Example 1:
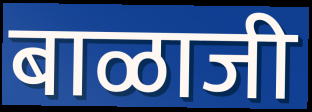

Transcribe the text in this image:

बाळाजी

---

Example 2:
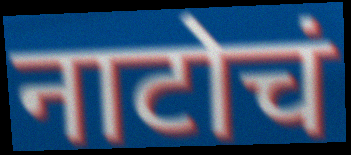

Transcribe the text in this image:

नाटोचं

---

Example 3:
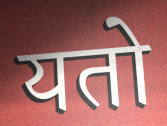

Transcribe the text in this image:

यतो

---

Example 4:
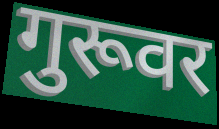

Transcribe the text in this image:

गुरूवर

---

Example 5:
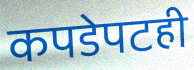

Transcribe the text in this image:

कपडेपटही